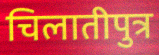
चिलातीपुत्र